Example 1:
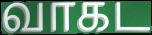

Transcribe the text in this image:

வாகட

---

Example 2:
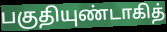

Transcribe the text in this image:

பகுதியுண்டாகித்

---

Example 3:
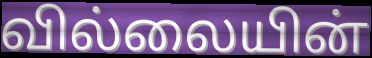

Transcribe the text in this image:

வில்லையின்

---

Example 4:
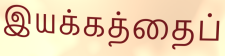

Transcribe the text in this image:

இயக்கத்தைப்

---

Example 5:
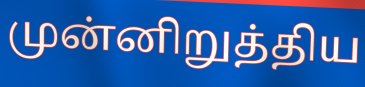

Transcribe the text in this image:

முன்னிறுத்திய